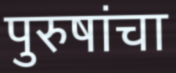
पुरुषांचा